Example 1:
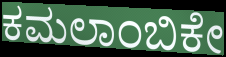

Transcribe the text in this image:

ಕಮಲಾಂಬಿಕೇ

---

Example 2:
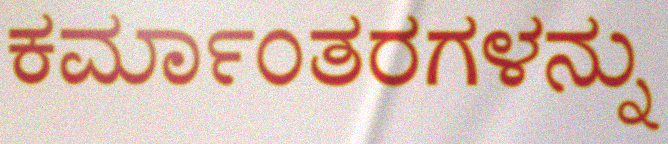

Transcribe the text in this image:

ಕರ್ಮಾಂತರಗಳನ್ನು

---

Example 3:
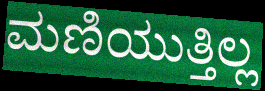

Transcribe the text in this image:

ಮಣಿಯುತ್ತಿಲ್ಲ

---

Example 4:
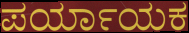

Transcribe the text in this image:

ಪರ್ಯಾಯಕ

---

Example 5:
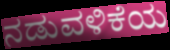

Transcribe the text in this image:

ನಡುವಳಿಕೆಯ